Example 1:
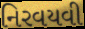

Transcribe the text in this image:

નિરવયવી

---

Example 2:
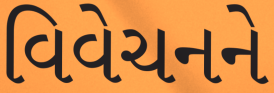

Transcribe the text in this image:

વિવેચનને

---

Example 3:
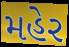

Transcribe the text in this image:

મહેર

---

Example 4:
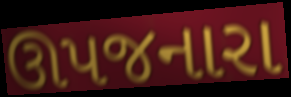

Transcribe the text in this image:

ઊપજનારા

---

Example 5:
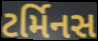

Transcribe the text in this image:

ટર્મિનસ